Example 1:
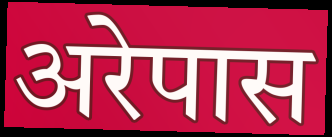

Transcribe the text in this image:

अरेपास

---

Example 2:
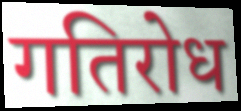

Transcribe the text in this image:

गतिरोध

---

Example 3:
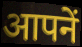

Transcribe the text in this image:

आपनें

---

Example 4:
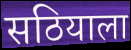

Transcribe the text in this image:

सठियाला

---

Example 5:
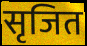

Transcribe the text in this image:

सृजित